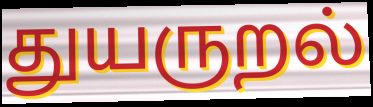
துயருறல்